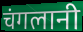
चंगलानी